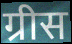
ग्रीस